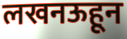
लखनऊहून